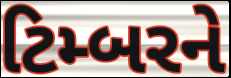
ટિમ્બરને